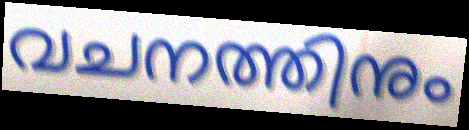
വചനത്തിനും